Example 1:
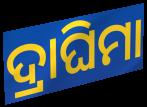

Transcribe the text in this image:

ଦ୍ରାଘିମା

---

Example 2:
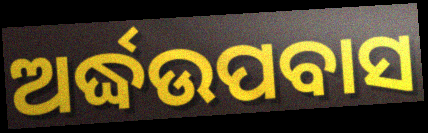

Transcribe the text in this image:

ଅର୍ଦ୍ଧଉପବାସ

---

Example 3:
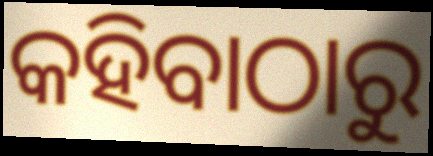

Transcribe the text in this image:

କହିବାଠାରୁ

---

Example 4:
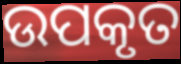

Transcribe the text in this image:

ଉପକୃତ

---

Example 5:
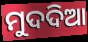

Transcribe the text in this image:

ମୁଦଦିଆ